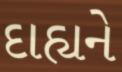
દાહ્યને